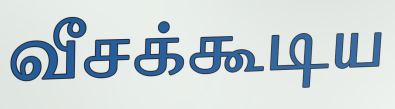
வீசக்கூடிய